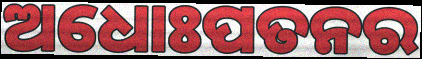
ଅଧୋଃପତନର